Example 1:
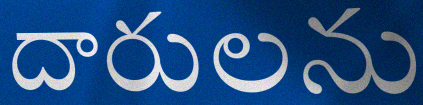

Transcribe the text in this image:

దారులను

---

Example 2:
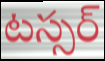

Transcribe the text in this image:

టస్సర్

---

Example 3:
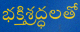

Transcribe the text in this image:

భక్తిశ్రద్ధలతో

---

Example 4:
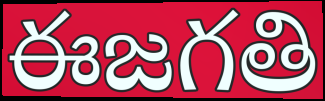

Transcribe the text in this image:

ఈజగతి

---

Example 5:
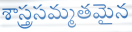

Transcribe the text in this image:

శాస్త్రసమ్మతమైన